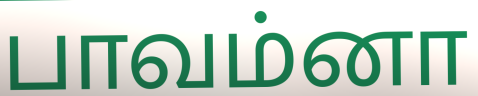
பாவம்னா